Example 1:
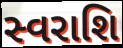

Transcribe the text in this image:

સ્વરાશિ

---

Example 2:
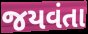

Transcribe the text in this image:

જયવંતા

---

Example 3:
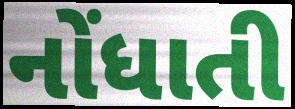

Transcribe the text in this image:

નોંધાતી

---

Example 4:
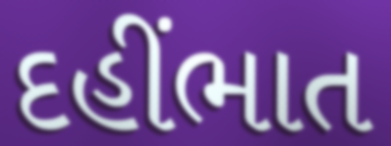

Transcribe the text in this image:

દહીંભાત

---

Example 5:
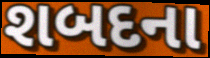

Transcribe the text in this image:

શબદના